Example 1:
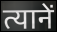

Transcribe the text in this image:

त्यानें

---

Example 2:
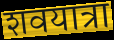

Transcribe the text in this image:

शवयात्रा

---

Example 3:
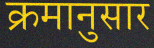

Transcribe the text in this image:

क्रमानुसार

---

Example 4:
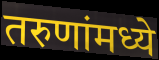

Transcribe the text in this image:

तरुणांमध्ये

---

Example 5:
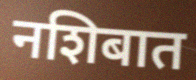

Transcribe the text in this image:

नशिबात